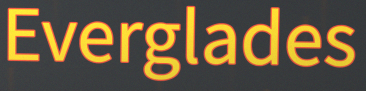
Everglades